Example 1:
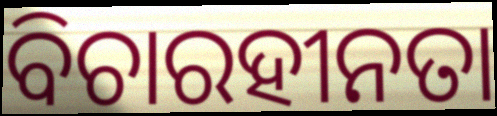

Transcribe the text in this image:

ବିଚାରହୀନତା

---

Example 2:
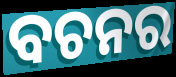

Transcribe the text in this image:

ବଚନର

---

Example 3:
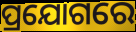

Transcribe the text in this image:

ପ୍ରଯୋଗରେ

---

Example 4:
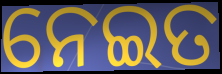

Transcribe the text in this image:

ନେଇତ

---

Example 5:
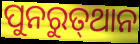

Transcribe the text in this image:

ପୁନରୁତ୍‍ଥାନ